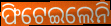
ଫିଟେଇଲେନି